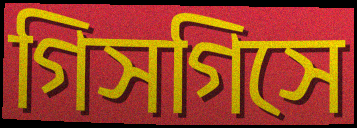
গিসগিসে